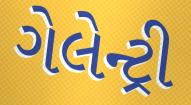
ગેલેન્ટ્રી